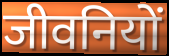
जीवनियों